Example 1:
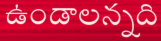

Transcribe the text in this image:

ఉండాలన్నది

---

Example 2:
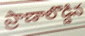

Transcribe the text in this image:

ప్రాణాలొడ్డిన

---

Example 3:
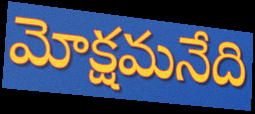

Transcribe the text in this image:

మోక్షమనేది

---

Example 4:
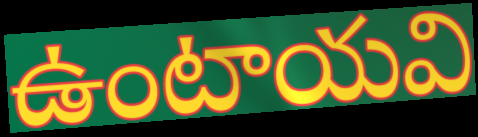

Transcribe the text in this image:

ఉంటాయవి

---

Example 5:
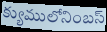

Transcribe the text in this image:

క్యుములోనింబస్